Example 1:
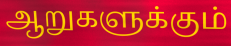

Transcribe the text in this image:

ஆறுகளுக்கும்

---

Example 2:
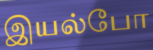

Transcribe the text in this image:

இயல்போ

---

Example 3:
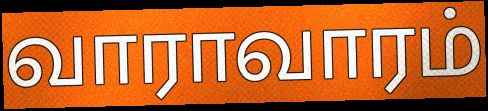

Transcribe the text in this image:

வாராவாரம்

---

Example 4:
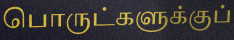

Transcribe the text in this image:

பொருட்களுக்குப்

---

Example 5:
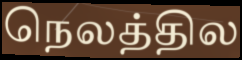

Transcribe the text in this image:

நெலத்தில